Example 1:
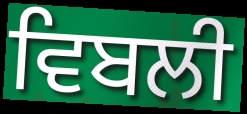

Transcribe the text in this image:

ਵਿਬਲੀ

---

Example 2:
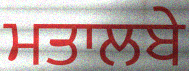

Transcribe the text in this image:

ਮਤਾਲਬੇ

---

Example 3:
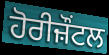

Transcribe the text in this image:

ਹੋਰੀਜ਼ੌਂਟਲ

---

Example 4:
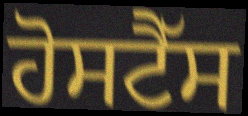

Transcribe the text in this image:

ਹੋਸਟੈੱਸ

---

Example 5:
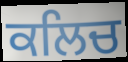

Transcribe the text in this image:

ਕਲਿਚ